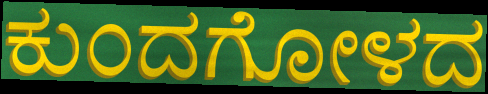
ಕುಂದಗೋಳದ